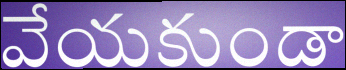
వేయకుండా